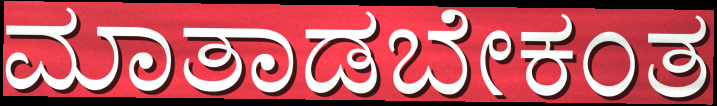
ಮಾತಾಡಬೇಕಂತ